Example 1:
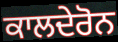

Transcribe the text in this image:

ਕਾਲਦੇਰੋਨ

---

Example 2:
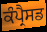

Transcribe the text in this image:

ਕੰਪ੍ਰੈਸਡ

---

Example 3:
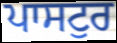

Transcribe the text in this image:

ਪਾਸਟੁਰ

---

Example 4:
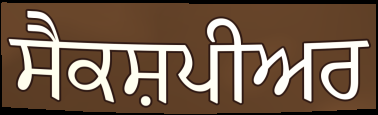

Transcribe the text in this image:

ਸੈਕਸ਼ਪੀਅਰ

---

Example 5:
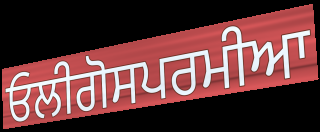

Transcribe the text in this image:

ਓਲੀਗੋਸਪਰਮੀਆ